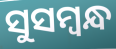
ସୁସମ୍ବନ୍ଧ